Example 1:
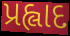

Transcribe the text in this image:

પ્રહ્લાદ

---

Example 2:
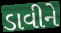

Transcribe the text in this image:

ડાવીને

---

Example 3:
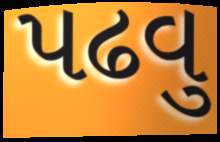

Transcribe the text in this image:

પઢવુ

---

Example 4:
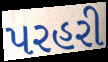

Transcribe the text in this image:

પરહરી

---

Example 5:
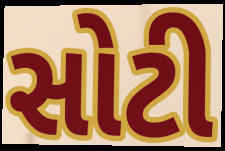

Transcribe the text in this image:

સોટી